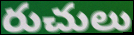
రుచులు